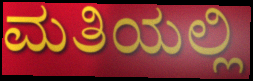
ಮತಿಯಲ್ಲಿ